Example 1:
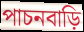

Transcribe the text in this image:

পাচনবাড়ি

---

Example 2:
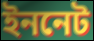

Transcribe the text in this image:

ইননেট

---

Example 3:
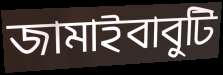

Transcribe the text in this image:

জামাইবাবুটি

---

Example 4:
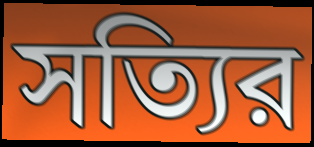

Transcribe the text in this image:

সত্যির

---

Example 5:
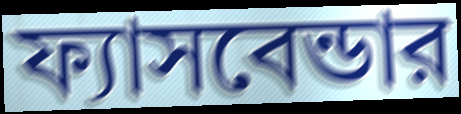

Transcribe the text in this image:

ফ্যাসবেন্ডার